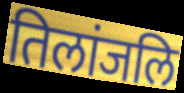
तिलांजलि